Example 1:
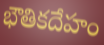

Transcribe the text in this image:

భౌతికదేహం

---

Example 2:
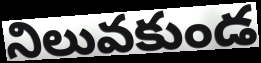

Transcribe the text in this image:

నిలువకుండ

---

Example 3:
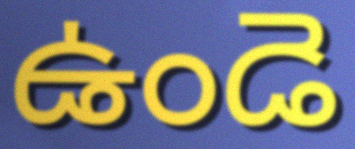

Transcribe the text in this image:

ఉండె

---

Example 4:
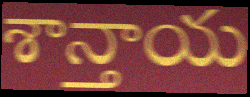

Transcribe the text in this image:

శాన్తాయ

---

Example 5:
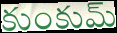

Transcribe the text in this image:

కుంకుమ్